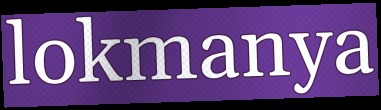
lokmanya